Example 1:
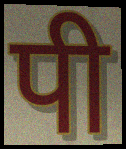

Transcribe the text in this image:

पी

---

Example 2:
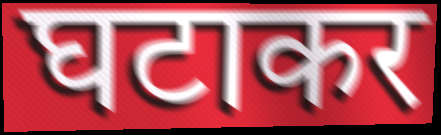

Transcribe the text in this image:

घटाकर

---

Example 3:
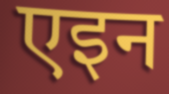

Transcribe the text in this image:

एइन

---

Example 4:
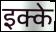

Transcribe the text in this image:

इक्के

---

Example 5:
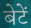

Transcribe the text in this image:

बेटें